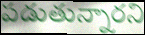
పడుతున్నారని